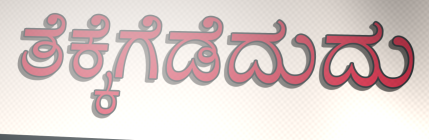
ತೆಕ್ಕೆಗೆಡೆದುದು